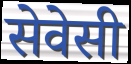
सेवेसी